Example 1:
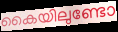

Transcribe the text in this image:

കൈയിലുണ്ടോ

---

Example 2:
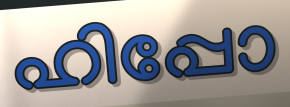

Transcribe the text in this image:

ഹിപ്പോ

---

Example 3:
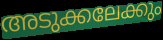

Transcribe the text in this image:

അടുക്കലേക്കും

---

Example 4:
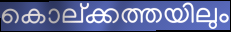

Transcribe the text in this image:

കൊല്ക്കത്തയിലും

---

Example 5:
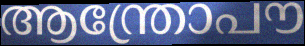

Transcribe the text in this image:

ആന്ത്രോപൗ